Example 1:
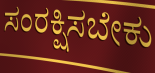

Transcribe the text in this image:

ಸಂರಕ್ಷಿಸಬೇಕು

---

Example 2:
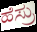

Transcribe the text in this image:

ಹೆಸ್ರು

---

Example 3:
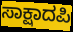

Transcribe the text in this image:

ಸಾಕ್ಷಾದಪಿ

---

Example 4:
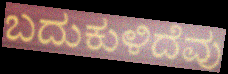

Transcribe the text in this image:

ಬದುಕುಳಿದೆವು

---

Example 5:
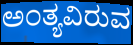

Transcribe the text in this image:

ಅಂತ್ಯವಿರುವ